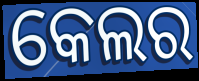
କେଲର